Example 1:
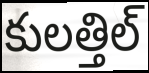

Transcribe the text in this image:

కులత్తిల్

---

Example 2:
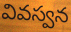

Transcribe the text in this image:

వివస్వన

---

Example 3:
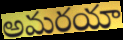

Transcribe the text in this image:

అమరయా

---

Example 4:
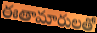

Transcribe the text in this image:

ఈతామారులతో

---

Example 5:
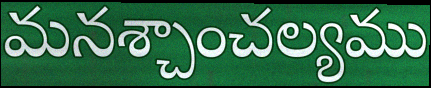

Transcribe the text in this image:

మనశ్చాంచల్యము